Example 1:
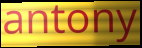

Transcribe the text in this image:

antony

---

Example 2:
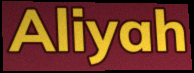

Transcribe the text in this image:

Aliyah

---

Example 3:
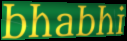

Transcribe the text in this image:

bhabhi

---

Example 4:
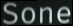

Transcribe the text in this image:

Sone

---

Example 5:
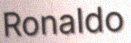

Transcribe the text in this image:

Ronaldo